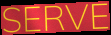
SERVE